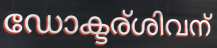
ഡോക്ടര്ശിവന്